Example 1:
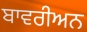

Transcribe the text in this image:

ਬਾਵਰੀਅਨ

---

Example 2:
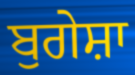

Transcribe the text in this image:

ਬੁਗੇਸ਼ਾ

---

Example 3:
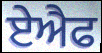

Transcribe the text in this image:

ਏਐਫ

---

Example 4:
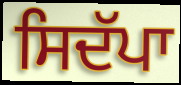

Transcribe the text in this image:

ਸਿਦੱਪਾ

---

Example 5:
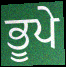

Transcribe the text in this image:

ਭੂਪੇ